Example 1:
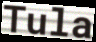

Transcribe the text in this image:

Tula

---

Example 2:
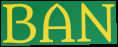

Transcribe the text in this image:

BAN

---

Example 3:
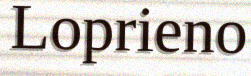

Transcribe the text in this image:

Loprieno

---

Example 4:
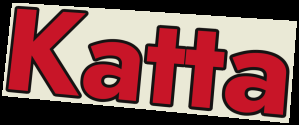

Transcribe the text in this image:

Katta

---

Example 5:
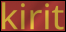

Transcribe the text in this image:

kirit